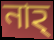
নাহ্